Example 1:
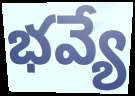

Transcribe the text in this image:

భవ్యే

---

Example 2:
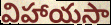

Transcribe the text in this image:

విహాయసా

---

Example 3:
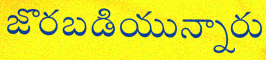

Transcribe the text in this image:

జొరబడియున్నారు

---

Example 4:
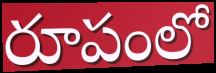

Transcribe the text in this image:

రూపంలో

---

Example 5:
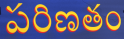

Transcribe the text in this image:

పరిణతం